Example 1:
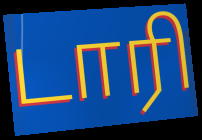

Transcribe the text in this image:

டாரி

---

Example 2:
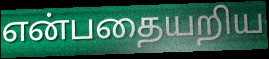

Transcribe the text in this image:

என்பதையறிய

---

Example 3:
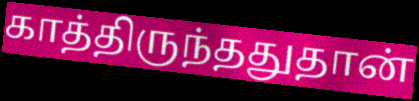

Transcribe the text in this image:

காத்திருந்ததுதான்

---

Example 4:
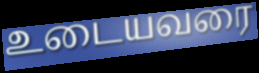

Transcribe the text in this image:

உடையவரை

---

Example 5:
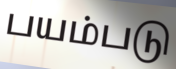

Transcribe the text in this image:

பயம்படு